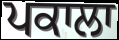
ਪਕਾਲਾ